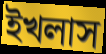
ইখলাস